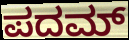
ಪದಮ್